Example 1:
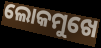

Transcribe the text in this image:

ଲୋକମୁଖେ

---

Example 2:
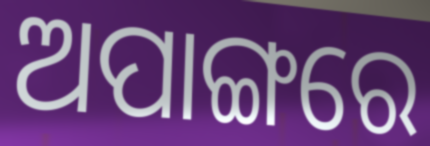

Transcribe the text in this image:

ଅପାଙ୍ଗରେ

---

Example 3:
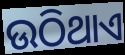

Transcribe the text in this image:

ଉଠିଥାଏ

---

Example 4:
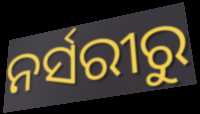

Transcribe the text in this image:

ନର୍ସରୀରୁ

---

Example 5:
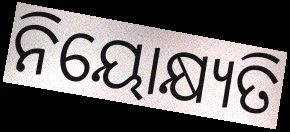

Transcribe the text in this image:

ନିୟୋକ୍ଷ୍ୟତି